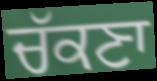
ਚੱਕਣਾ